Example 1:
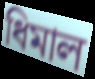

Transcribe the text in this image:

ধিমাল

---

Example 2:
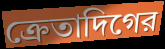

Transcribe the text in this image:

ক্রেতাদিগের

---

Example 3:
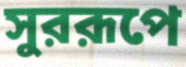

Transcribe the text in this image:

সুররূপে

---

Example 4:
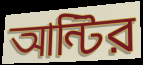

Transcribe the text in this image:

আন্টির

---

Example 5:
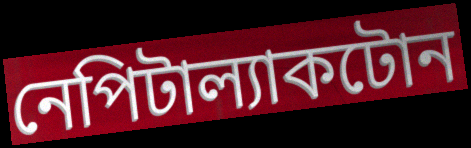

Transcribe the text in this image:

নেপিটাল্যাকটোন